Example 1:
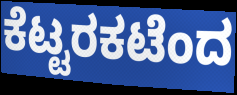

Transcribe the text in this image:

ಕೆಟ್ಟರಕಟೆಂದ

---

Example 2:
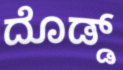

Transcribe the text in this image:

ದೊಡ್ಡ್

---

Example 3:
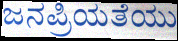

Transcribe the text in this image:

ಜನಪ್ರಿಯತೆಯು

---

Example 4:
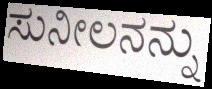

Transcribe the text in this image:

ಸುನೀಲನನ್ನು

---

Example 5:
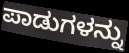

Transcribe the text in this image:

ಪಾಡುಗಳನ್ನು